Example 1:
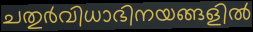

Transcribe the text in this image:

ചതുർവിധാഭിനയങ്ങളിൽ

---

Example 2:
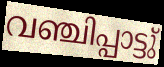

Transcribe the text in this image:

വഞ്ചിപ്പാട്ടു്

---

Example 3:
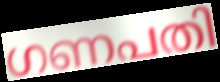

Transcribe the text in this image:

ഗണപതി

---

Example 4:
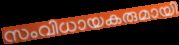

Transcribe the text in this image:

സംവിധായകരുമായി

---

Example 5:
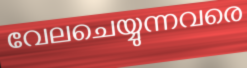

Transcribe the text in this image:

വേലചെയ്യുന്നവരെ